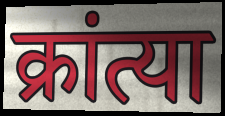
क्रांत्या